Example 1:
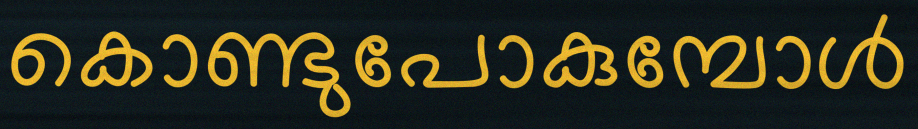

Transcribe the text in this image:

കൊണ്ടുപോകുമ്പോൾ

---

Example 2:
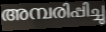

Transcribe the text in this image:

അമ്പരിപ്പിച്ചു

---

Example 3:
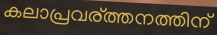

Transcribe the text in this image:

കലാപ്രവര്ത്തനത്തിന്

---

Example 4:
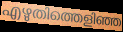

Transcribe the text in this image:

എഴുതിത്തെളിഞ്ഞ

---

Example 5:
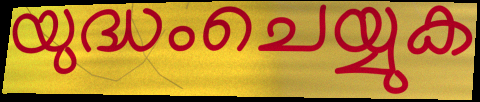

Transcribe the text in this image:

യുദ്ധംചെയ്യുക